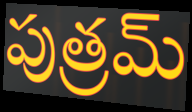
పుత్రమ్